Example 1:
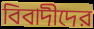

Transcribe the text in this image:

বিবাদীদের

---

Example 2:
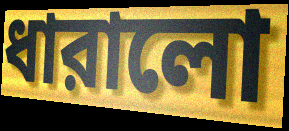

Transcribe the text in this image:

ধারালো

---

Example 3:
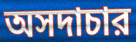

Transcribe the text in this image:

অসদাচার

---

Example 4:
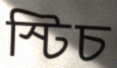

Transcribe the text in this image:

স্টিচ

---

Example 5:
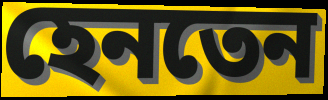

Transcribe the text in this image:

হেনতেন